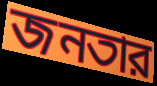
জনতার